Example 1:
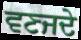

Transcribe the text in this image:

ਵਣਜਦੇ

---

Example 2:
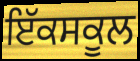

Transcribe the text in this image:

ਇੱਕਸਕੂਲ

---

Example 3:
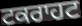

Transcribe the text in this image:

ਟਕਰਾਹਟ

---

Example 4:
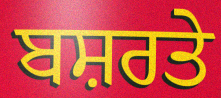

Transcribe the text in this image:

ਬਸ਼ਰਤੇ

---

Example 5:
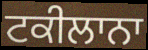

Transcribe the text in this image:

ਟਕੀਲਾਨਾ